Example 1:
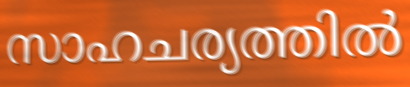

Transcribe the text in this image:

സാഹചര്യത്തിൽ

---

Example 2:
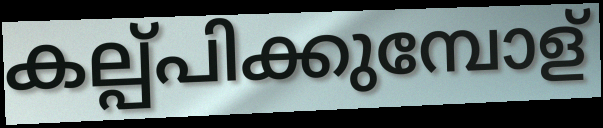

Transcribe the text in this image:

കല്പ്പിക്കുമ്പോള്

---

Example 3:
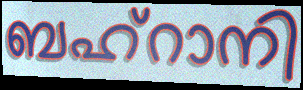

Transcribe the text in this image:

ബഹ്റാനി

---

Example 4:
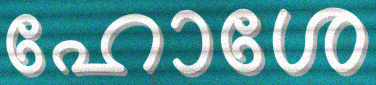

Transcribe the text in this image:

ഹോശേ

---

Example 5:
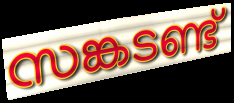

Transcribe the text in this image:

സങ്കടണ്ട്